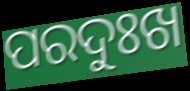
ପରଦୁଃଖ